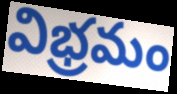
విభ్రమం